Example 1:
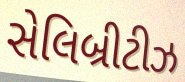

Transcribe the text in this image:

સેલિબ્રીટીઝ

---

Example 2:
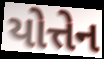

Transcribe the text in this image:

યોત્તેન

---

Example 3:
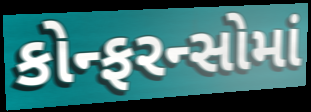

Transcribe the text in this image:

કોન્ફરન્સોમાં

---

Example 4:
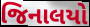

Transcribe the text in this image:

જિનાલયો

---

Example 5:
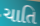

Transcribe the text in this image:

ચાતિ